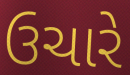
ઉચારે